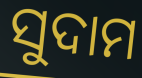
ସୁଦାମ